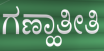
ಗಣ್ಹಾತೀತಿ